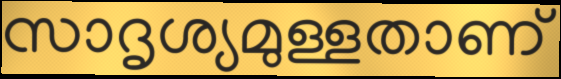
സാദൃശ്യമുള്ളതാണ്